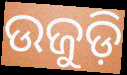
ଉଜୁଡ଼ି